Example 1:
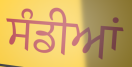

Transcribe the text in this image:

ਸੰਡੀਆਂ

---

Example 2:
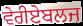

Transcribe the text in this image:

ਵੇਰੀਏਬਲਜ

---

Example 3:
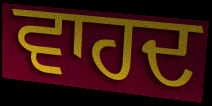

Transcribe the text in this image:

ਵਾਹਦ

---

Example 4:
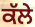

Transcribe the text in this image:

ਕੱਲੇ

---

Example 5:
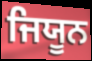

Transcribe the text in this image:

ਜਿਯੂਨ